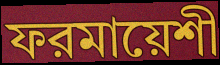
ফরমায়েশী